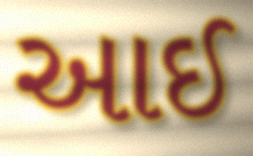
આઈ